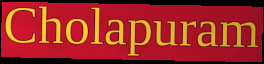
Cholapuram